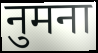
नुमना